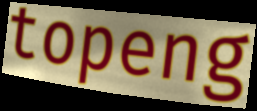
topeng